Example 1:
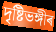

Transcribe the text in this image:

দৃষ্টিভঙ্গীৰ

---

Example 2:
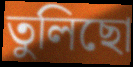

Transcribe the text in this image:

তুলিছো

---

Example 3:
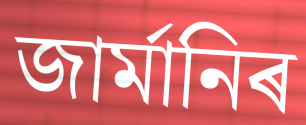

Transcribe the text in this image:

জাৰ্মানিৰ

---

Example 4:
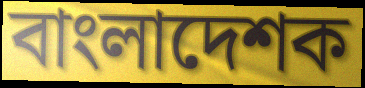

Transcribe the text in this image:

বাংলাদেশক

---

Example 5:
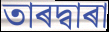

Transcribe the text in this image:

তাৰদ্বাৰা